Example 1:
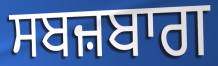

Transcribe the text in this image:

ਸਬਜ਼ਬਾਗ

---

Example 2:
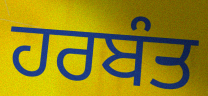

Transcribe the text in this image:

ਹਰਬੰਤ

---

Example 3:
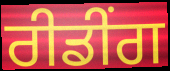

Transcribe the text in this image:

ਰੀਡੀਂਗ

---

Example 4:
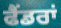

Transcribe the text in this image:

ਫੈਂਡਰਾਂ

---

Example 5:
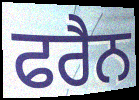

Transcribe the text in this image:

ਫਰੈਨ